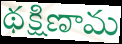
థక్షిణామ